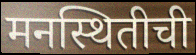
मनस्थितीची